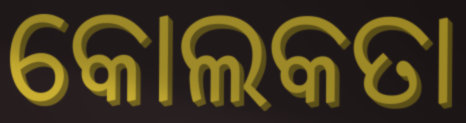
କୋଲକତା